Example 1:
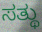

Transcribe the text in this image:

ಸತ್ಥು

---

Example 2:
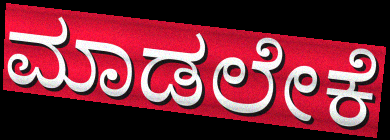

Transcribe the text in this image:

ಮಾಡಲೇಕೆ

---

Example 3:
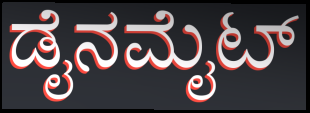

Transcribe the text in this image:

ಡೈನಮೈಟ್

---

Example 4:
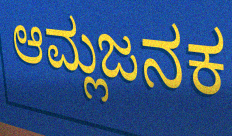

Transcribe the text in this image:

ಆಮ್ಲಜನಕ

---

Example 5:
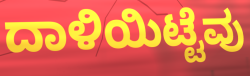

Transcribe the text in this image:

ದಾಳಿಯಿಟ್ಟೆವು